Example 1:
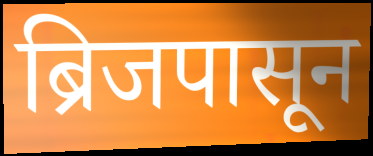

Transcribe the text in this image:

ब्रिजपासून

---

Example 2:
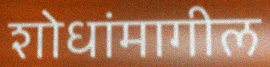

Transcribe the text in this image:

शोधांमागील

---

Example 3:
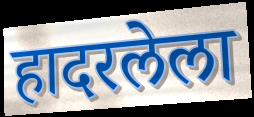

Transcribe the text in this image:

हादरलेला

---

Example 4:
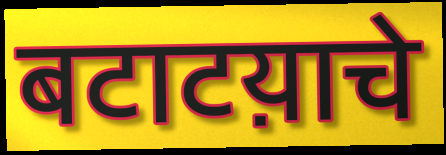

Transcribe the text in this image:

बटाटय़ाचे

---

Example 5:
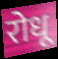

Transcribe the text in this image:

रोधू